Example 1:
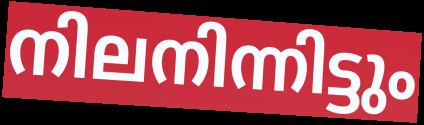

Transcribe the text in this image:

നിലനിന്നിട്ടും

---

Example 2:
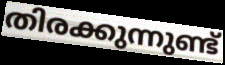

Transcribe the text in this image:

തിരക്കുന്നുണ്ട്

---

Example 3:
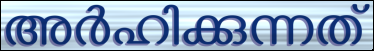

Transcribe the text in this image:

അർഹിക്കുന്നത്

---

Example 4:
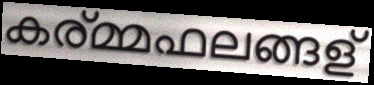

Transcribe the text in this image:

കര്മ്മഫലങ്ങള്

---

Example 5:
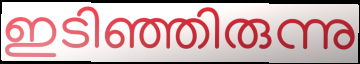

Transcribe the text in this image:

ഇടിഞ്ഞിരുന്നു